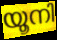
യൂനി